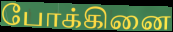
போக்கினை